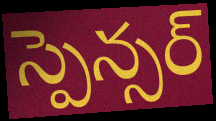
స్పెన్సర్